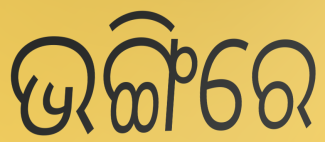
ଭଙ୍ଗିରେ